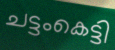
ചട്ടംകെട്ടി